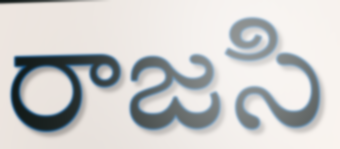
రాజసి